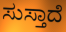
ಸುಸ್ತಾದೆ